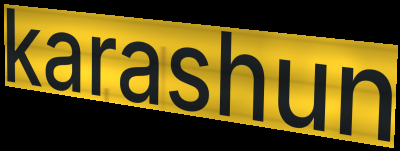
karashun